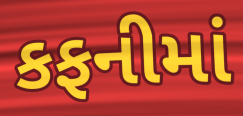
કફનીમાં